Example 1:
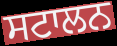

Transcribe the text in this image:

ਸਟਾਲਨ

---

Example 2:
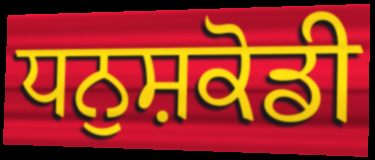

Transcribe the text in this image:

ਧਨੁਸ਼ਕੋਡੀ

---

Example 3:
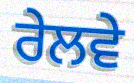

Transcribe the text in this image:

ਰੇਲਵੇ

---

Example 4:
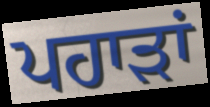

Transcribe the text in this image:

ਪਹਾੜਾਂ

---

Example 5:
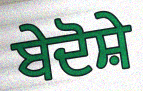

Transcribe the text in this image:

ਬੇਦੋਸ਼ੇ